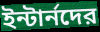
ইন্টার্নদের